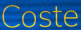
Coste